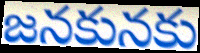
జనకునకు